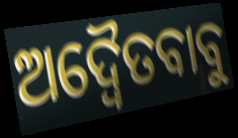
ଅଦ୍ୱୈତବାବୁ